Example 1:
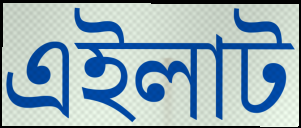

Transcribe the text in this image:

এইলাট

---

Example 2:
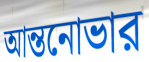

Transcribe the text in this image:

আন্তনোভার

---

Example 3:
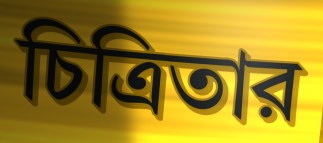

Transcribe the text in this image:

চিত্রিতার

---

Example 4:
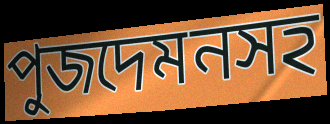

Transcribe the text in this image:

পুজদেমনসহ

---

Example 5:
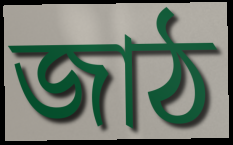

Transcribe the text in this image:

জাঠ